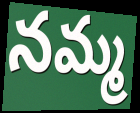
నమ్మ